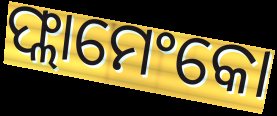
ଫ୍ଲାମେଂକୋ